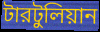
টারটুলিয়ান